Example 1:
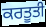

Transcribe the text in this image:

ਕਰਤੂਤੀ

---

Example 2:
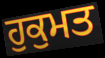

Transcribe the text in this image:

ਹੁਕੁਮਤ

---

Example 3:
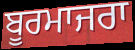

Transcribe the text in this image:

ਬੂਰਮਾਜਰਾ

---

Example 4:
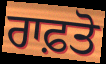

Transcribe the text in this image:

ਰਾਫ਼ਤੋ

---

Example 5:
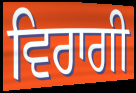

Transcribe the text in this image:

ਵਿਰਾਗੀ